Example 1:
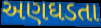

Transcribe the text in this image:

અણઘડતા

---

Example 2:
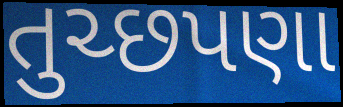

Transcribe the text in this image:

તુચ્છપણા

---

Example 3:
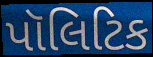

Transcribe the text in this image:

પૉલિટિક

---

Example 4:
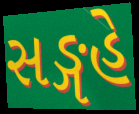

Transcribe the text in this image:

સઙ્ગહે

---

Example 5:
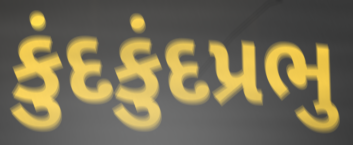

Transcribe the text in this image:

કુંદકુંદપ્રભુ